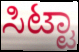
ಸಿಟ್ಟಾ